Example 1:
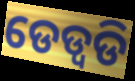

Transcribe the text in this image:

ଡେଡ୍ବଡି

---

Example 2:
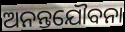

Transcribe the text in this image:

ଅନନ୍ତଯୌବନା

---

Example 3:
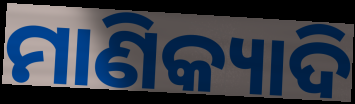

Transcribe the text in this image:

ମାଣିକ୍ୟାଦି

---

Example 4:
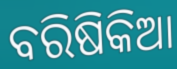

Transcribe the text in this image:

ବରିଷିକିଆ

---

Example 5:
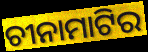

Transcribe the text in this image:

ଚୀନାମାଟିର